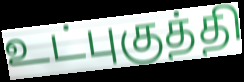
உட்புகுத்தி